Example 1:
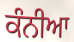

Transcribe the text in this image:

ਕੰਨੀਆ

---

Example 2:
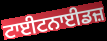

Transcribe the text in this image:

ਟਾਈਟਨਾਈਡਜ਼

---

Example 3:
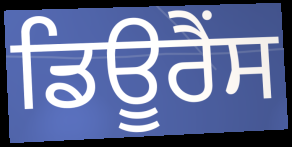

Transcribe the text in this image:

ਡਿਊਰੈਂਸ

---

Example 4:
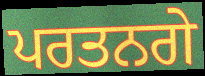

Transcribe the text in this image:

ਪਰਤਨਗੇ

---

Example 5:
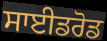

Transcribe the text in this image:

ਸਾਈਡਰੋਡ